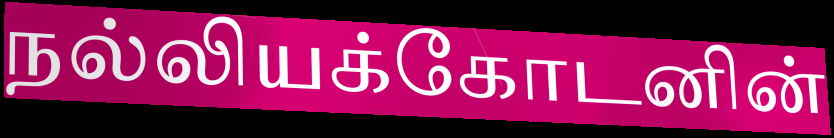
நல்லியக்கோடனின்